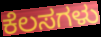
ಕೆಲಸಗಳು